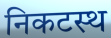
निकटस्‍थ